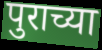
पुराच्या